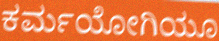
ಕರ್ಮಯೋಗಿಯೂ